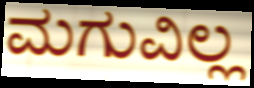
ಮಗುವಿಲ್ಲ